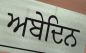
ਅਬੇਦਿਨ